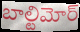
బాల్టిమోర్